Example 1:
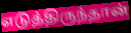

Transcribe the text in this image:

எடுத்திருந்தான்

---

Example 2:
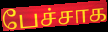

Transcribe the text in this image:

பேச்சாக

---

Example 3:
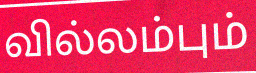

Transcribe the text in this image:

வில்லம்பும்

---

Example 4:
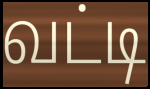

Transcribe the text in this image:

வட்டி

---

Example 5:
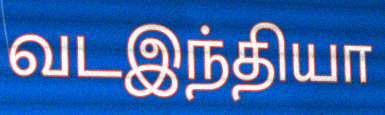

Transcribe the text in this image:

வடஇந்தியா